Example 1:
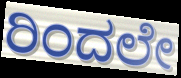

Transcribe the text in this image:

ರಿಂದಲೇ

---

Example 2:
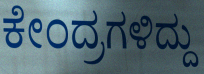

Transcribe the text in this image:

ಕೇಂದ್ರಗಳಿದ್ದು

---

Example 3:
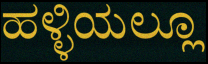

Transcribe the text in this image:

ಹಳ್ಳಿಯಲ್ಲೂ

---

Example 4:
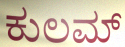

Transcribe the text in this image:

ಕುಲಮ್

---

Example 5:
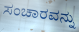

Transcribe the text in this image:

ಸಂಚಾರವನ್ನು